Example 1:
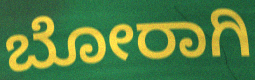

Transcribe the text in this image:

ಬೋರಾಗಿ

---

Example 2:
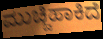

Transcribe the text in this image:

ಮುಚ್ಚಿಹಾಕಿದೆ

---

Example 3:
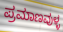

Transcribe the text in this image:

ಪ್ರಮಾಣವುಳ್ಳ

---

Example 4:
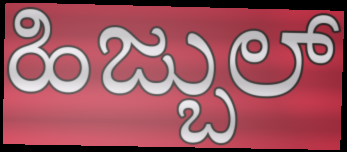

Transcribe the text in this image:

ಹಿಜ್ಬುಲ್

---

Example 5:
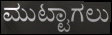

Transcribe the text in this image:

ಮುಟ್ಟಾಗಲು